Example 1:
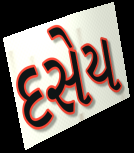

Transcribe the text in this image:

દસેય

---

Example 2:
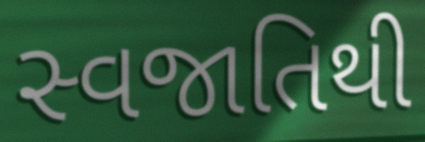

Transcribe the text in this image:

સ્વજાતિથી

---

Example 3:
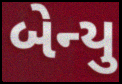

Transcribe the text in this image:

બેન્યુ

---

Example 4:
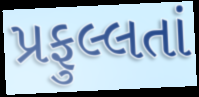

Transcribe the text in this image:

પ્રફુલ્લતાં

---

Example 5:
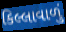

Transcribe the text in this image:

કિલ્લાવાળું